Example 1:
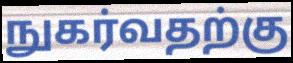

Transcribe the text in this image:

நுகர்வதற்கு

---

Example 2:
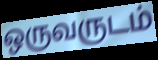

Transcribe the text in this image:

ஒருவருடம்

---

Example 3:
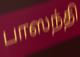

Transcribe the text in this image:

பாஸந்தி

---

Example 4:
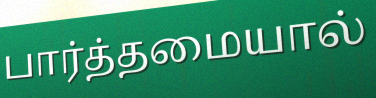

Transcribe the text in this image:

பார்த்தமையால்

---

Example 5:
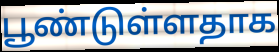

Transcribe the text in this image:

பூண்டுள்ளதாக